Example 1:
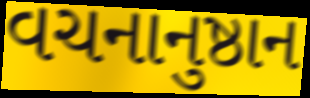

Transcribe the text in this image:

વચનાનુષ્ઠાન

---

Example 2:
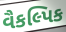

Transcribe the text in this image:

વૈકલ્પિક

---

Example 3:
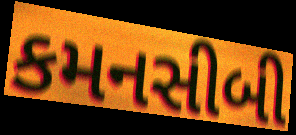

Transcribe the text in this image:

કમનસીબી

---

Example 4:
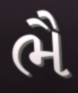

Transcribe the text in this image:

ભૈ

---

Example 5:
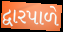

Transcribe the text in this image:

દ્વારપાળે